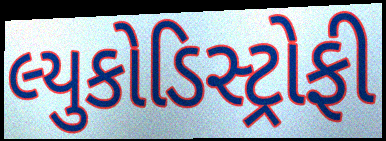
લ્યુકોડિસ્ટ્રોફી